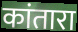
कांतारा